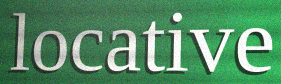
locative